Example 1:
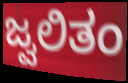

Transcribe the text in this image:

ಜ್ವಲಿತಂ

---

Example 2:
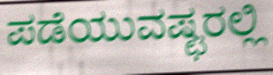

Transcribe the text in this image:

ಪಡೆಯುವಷ್ಟರಲ್ಲಿ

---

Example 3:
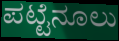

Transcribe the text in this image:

ಪಟ್ಟೆನೂಲು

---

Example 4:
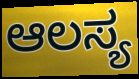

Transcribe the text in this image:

ಆಲಸ್ಯ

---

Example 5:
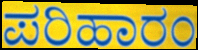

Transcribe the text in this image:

ಪರಿಹಾರಂ